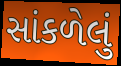
સાંકળેલું